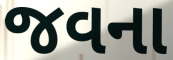
જવના